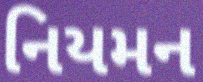
નિયમન